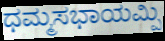
ಧಮ್ಮಸಭಾಯಮ್ಪಿ